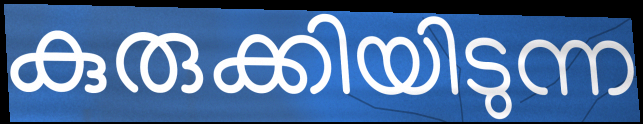
കുരുക്കിയിടുന്ന